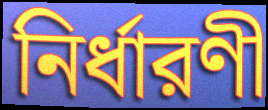
নির্ধারণী